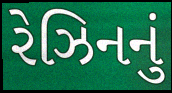
રેઝિનનું